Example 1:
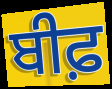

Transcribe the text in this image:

ਬੀਫ਼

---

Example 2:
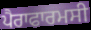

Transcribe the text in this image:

ਪੈਰਾਫਾਰਮਸੀ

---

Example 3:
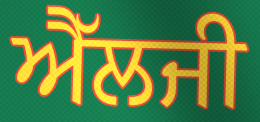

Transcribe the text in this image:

ਐੱਲਜੀ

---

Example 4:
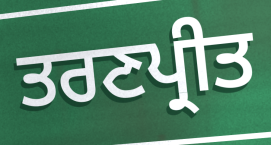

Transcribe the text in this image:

ਤਰਣਪ੍ਰੀਤ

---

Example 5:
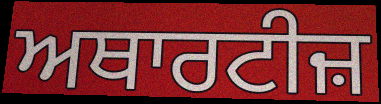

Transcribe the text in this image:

ਅਥਾਰਟੀਜ਼